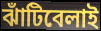
ঝাঁটিবেলাই